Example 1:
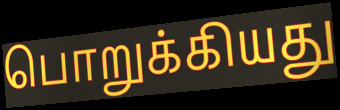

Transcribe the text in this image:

பொறுக்கியது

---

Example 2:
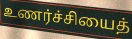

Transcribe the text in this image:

உணர்ச்சியைத்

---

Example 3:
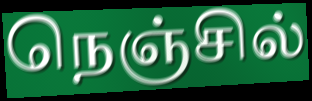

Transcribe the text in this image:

நெஞ்சில்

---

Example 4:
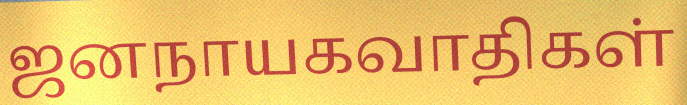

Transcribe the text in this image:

ஜனநாயகவாதிகள்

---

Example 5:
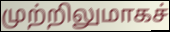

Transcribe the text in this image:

முற்றிலுமாகச்